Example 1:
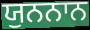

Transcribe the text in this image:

ਯੁਨਨਾਨ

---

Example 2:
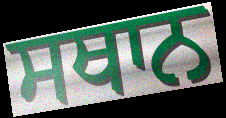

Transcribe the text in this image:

ਸਥਾਨ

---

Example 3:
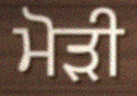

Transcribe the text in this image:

ਮੋੜੀ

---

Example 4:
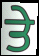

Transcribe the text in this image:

ਤੇ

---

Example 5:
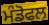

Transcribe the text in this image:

ਮੰਡੋਫਲ